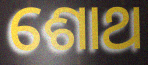
ଶୋଥ